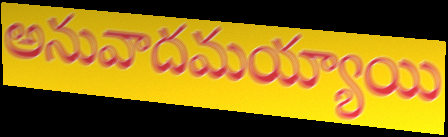
అనువాదమయ్యాయి